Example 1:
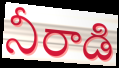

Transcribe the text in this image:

నీరాడి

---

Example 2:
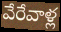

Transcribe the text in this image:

వేరేవాళ్ల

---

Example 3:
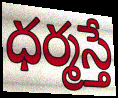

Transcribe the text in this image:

ధర్మస్తే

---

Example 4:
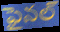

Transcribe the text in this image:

ఫైనల్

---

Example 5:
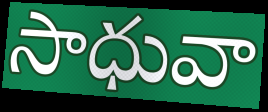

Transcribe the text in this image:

సాధువా